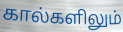
கால்களிலும்